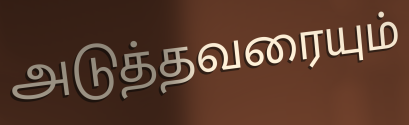
அடுத்தவரையும்